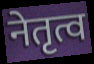
नेतृत्व